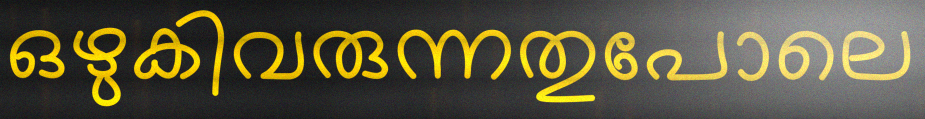
ഒഴുകിവരുന്നതുപോലെ